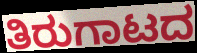
ತಿರುಗಾಟದ